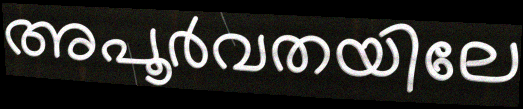
അപൂർവതയിലേ